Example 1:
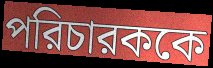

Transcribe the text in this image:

পরিচারককে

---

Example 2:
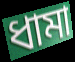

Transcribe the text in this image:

ধামা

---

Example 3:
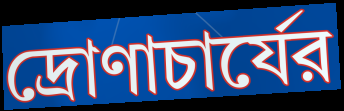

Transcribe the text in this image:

দ্রোণাচার্যের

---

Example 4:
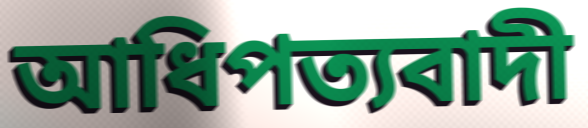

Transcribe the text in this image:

আধিপত্যবাদী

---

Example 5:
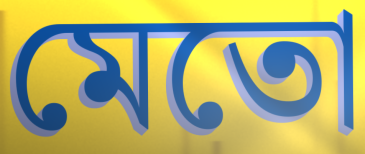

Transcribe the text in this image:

মেতো